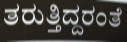
ತರುತ್ತಿದ್ದರಂತೆ